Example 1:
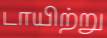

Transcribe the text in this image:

டாயிற்று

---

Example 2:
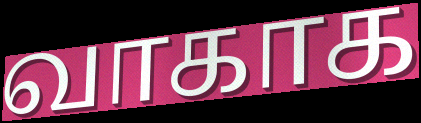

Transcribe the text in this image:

வாகாக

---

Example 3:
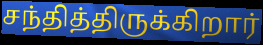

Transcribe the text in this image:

சந்தித்திருக்கிறார்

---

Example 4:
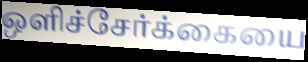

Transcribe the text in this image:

ஒளிச்சேர்க்கையை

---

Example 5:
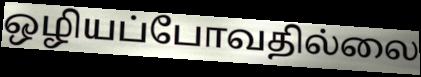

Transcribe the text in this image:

ஒழியப்போவதில்லை